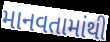
માનવતામાંથી